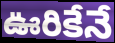
ఊరికేనే